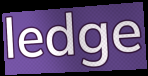
ledge